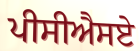
ਪੀਸੀਐਸਏ